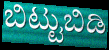
ಬಿಟ್ಟುಬಿಡಿ